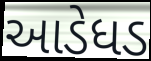
આડેધડ